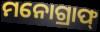
ମନୋଗ୍ରାଫ୍